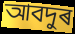
আবদুৰ